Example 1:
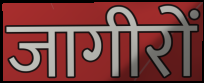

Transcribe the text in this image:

जागीरों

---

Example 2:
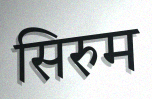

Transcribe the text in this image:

सिरुम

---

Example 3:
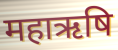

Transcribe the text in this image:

महाऋषि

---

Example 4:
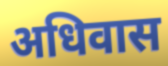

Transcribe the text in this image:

अधिवास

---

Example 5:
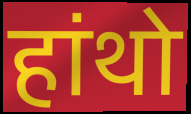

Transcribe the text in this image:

हांथो